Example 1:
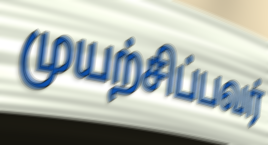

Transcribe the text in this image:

முயற்சிப்பவர்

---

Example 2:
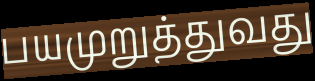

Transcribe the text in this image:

பயமுறுத்துவது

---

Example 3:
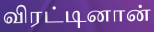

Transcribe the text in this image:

விரட்டினான்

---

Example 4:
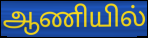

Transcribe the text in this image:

ஆணியில்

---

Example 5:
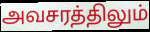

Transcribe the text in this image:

அவசரத்திலும்